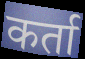
कर्ता